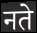
नते